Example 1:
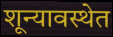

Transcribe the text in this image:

शून्यावस्थेत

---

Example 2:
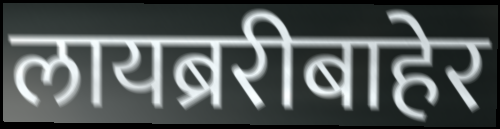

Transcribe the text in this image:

लायब्ररीबाहेर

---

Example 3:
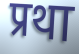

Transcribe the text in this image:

प्रथा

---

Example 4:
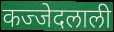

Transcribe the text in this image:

कज्जेदलाली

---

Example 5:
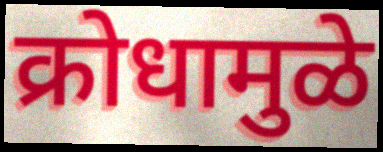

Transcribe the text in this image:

क्रोधामुळे